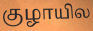
குழாயில